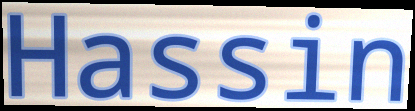
Hassin